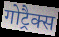
गोट्रैक्स